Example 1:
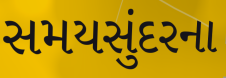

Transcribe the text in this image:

સમયસુંદરના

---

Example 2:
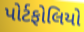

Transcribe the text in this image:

પોર્ટફોલિયો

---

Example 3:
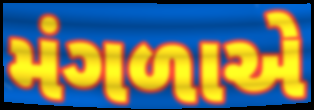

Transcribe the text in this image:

મંગળાએ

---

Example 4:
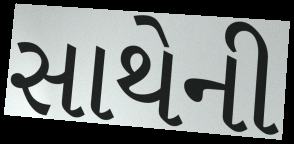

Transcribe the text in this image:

સાથેની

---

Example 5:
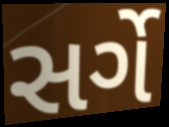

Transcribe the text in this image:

સર્ગે